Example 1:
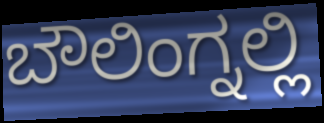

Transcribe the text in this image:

ಬೌಲಿಂಗ್ನಲ್ಲಿ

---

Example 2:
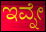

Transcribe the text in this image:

ಇವ್ನೇ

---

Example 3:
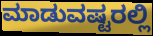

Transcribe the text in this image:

ಮಾಡುವಷ್ಟರಲ್ಲಿ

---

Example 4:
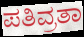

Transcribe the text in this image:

ಪತಿವ್ರತಾ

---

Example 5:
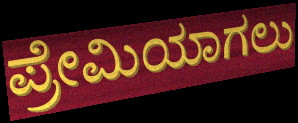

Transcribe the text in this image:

ಪ್ರೇಮಿಯಾಗಲು